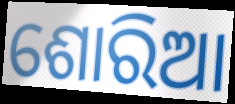
ଶୋରିଆ